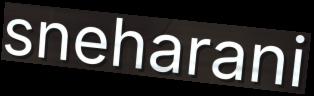
sneharani